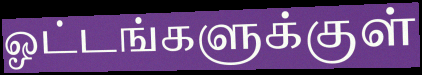
ஓட்டங்களுக்குள்